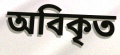
অবিকৃত